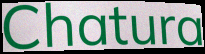
Chatura